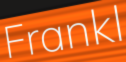
Frankl